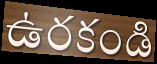
ఉరకండి